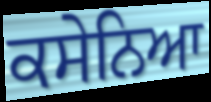
ਕਸੇਨਿਆ